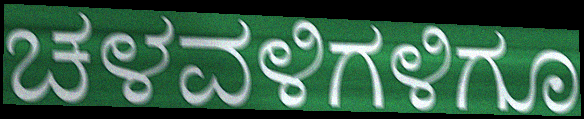
ಚಳವಳಿಗಳಿಗೂ